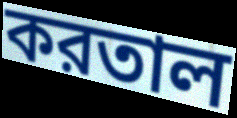
করতাল